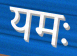
यमः